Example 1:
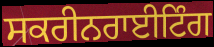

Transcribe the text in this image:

ਸਕਰੀਨਰਾਈਟਿੰਗ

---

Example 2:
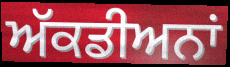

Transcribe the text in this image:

ਅੱਕਡੀਅਨਾਂ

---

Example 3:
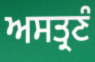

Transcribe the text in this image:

ਅਸਤ੍ਰਣੰ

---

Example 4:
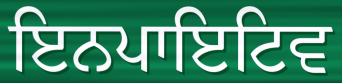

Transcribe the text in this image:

ਇਨਪਾਇਟਿਵ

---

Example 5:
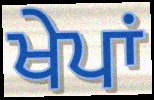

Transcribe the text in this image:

ਖੇਪਾਂ